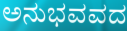
ಅನುಭವವದ